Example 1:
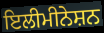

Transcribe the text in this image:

ਇਲੀਮੀਨੇਸ਼ਨ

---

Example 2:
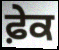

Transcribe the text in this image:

ਫ਼ੇਕ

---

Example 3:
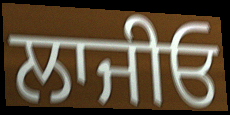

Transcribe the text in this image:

ਲਾਜੀਓ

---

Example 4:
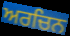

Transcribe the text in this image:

ਅਰਚਿਨ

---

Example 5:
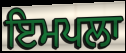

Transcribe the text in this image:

ਇਮਪਲਾ